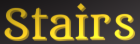
Stairs